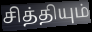
சித்தியும்